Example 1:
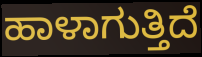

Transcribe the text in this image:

ಹಾಳಾಗುತ್ತಿದೆ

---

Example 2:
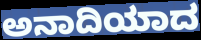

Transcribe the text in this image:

ಅನಾದಿಯಾದ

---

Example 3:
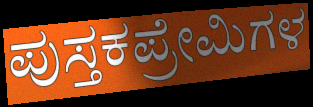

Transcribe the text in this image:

ಪುಸ್ತಕಪ್ರೇಮಿಗಳ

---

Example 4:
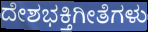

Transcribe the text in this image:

ದೇಶಭಕ್ತಿಗೀತೆಗಳು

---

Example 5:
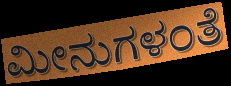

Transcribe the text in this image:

ಮೀನುಗಳಂತೆ